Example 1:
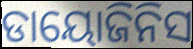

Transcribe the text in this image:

ଡାୟୋଜିନିସ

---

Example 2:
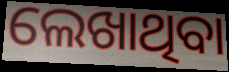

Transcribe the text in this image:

ଲେଖାଥିବା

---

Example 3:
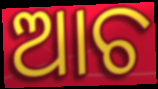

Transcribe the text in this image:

ଆଚ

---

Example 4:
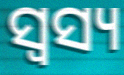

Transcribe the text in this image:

ସ୍ଵସ୍ୟ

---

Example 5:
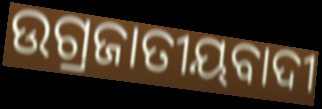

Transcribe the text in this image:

ଉଗ୍ରଜାତୀୟବାଦୀ